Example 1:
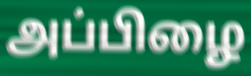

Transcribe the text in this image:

அப்பிழை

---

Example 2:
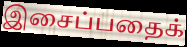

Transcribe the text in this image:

இசைப்பதைக்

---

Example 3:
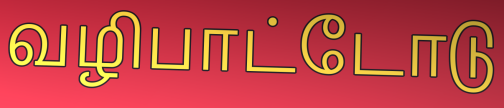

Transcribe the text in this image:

வழிபாட்டோடு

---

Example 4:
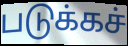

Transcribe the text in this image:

படுக்கச்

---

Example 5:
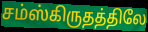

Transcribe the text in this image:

சம்ஸ்கிருதத்திலே